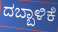
ದಬ್ಬಾಳಿಕೆ